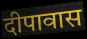
दीपावास